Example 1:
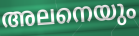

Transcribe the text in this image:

അലനെയും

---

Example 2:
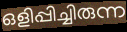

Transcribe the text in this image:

ഒളിപ്പിച്ചിരുന്ന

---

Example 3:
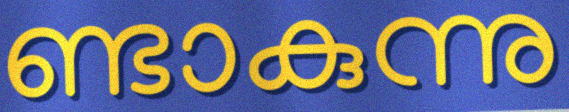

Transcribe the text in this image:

ണ്ടാകുന്നു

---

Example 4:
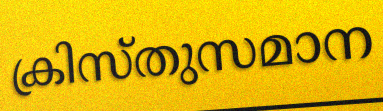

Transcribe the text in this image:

ക്രിസ്തുസമാന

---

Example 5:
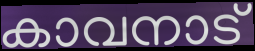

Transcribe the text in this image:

കാവനാട്